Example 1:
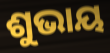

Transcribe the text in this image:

ଶୁଭାୟ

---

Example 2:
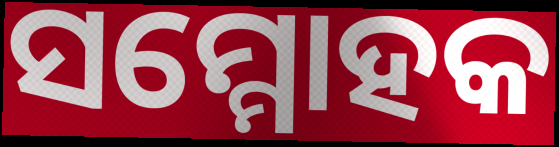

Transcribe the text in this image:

ସମ୍ମୋହକ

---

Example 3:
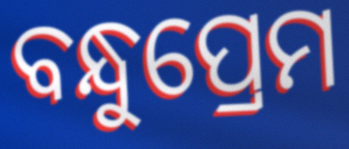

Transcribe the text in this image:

ବନ୍ଧୁପ୍ରେମ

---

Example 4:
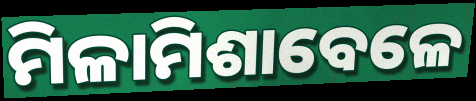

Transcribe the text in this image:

ମିଳାମିଶାବେଳେ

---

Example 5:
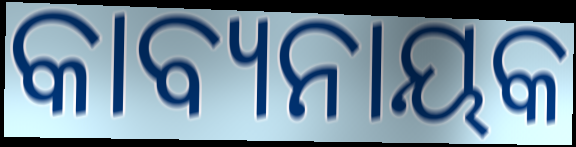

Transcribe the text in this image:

କାବ୍ୟନାୟକ